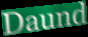
Daund